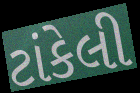
ટાંકેલી